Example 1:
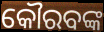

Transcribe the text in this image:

କୌରବଙ୍କ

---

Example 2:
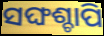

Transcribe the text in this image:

ସଙ୍ଘଶ୍ଚାପି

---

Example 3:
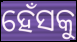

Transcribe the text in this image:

ହେଁସକୁ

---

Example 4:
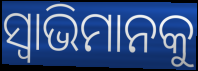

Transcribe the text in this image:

ସ୍ୱାଭିମାନକୁ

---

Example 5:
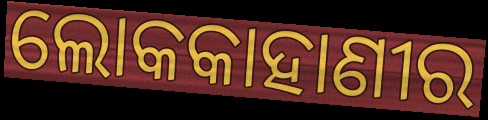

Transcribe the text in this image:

ଲୋକକାହାଣୀର